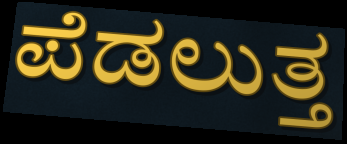
ಪೆಡಲುತ್ತ